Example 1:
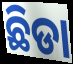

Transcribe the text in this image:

ଛିଡା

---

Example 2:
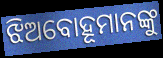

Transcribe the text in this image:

ଝିଅବୋହୂମାନଙ୍କୁ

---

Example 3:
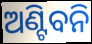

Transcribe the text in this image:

ଅଣ୍ଟିବନି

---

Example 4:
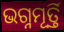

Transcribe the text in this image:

ଭଗ୍ନମୂର୍ତ୍ତି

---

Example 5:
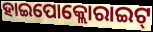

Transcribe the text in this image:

ହାଇପୋକ୍ଲୋରାଇଟ୍